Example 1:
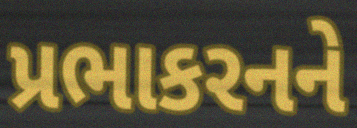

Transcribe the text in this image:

પ્રભાકરનને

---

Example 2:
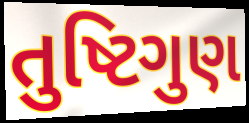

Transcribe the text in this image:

તુષ્ટિગુણ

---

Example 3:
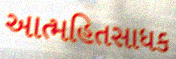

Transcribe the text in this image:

આત્મહિતસાધક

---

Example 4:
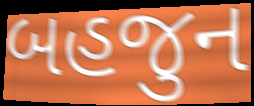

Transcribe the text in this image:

બહજુન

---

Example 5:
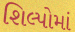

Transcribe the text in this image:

શિલ્પોમાં